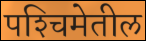
पश्चिमेतील